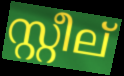
സ്റ്റീല്